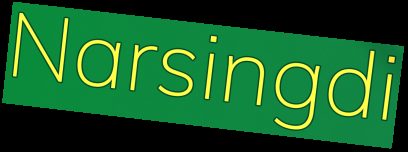
Narsingdi